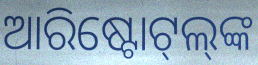
ଆରିଷ୍ଟୋଟ୍‌ଲ୍‌ଙ୍କ